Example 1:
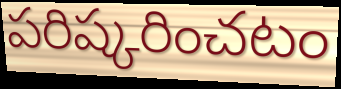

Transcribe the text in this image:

పరిష్కరించటం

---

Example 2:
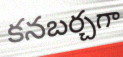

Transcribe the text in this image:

కనబర్చగా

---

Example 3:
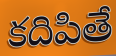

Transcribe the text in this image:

కదిపితే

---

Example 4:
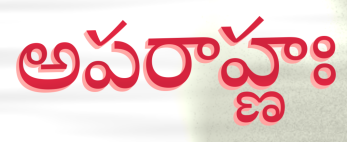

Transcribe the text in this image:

అపరాహ్ణః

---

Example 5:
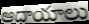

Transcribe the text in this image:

ఆదాయాలు